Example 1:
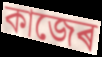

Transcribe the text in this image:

কাজেৰ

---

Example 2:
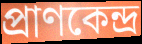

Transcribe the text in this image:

প্ৰাণকেন্দ্ৰ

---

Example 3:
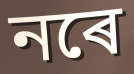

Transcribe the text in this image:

নৰে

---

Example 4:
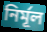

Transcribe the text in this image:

নিৰ্মূল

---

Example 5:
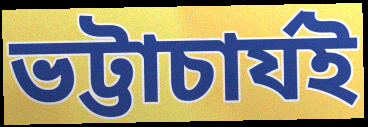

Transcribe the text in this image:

ভট্টাচাৰ্যই